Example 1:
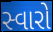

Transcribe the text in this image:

સ્વારો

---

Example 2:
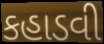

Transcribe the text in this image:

કહાડવી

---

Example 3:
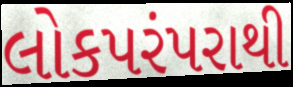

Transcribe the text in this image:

લોકપરંપરાથી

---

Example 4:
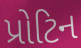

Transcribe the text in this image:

પ્રોટિન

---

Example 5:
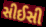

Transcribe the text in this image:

સીઈસી